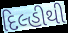
દિલ્હીથી